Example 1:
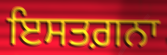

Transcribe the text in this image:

ਇਸਤਗ਼ਨਾ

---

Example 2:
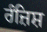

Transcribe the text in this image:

ਰੰਜ਼ਿਸ਼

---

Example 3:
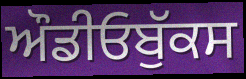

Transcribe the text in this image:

ਔਡੀਓਬੁੱਕਸ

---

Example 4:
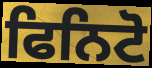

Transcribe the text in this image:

ਫਿਨਿਟੋ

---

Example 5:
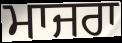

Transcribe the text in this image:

ਮਾਜਰਾ